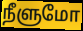
நீளுமோ